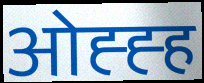
ओह्ह्ह